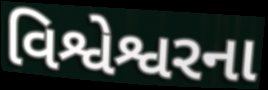
વિશ્વેશ્વરના